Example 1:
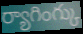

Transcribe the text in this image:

ర్యాగింగ్కు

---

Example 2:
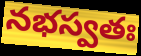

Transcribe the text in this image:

నభస్వతః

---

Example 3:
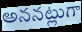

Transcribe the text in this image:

అననట్లుగా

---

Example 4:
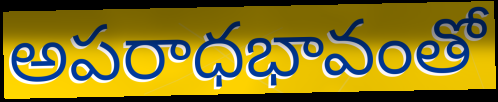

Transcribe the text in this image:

అపరాధభావంతో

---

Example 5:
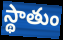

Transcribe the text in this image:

స్థాతుం